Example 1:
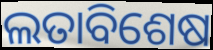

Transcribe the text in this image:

ଲତାବିଶେଷ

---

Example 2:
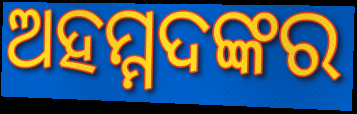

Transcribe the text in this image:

ଅହମ୍ମଦଙ୍କର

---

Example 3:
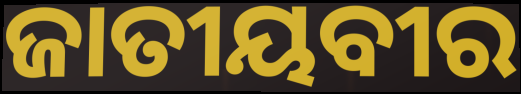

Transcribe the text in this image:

ଜାତୀୟବୀର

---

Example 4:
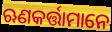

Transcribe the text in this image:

ଋଣକର୍ତ୍ତାମାନେ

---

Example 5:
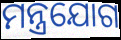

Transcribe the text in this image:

ମନ୍ତ୍ରଯୋଗ